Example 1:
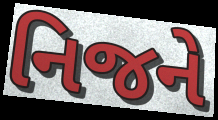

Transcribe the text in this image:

નિજને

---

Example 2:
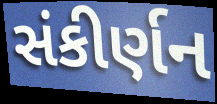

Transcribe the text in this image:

સંકીર્ણન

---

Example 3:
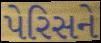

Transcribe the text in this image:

પેરિસને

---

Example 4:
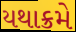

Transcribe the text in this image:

યથાક્રમે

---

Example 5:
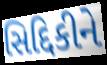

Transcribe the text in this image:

સિદ્દિકીને